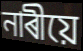
নাৰীয়ে